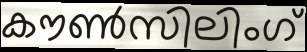
കൗൺസിലിംഗ്